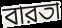
বারতা